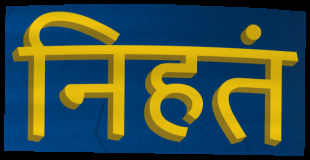
निहतं